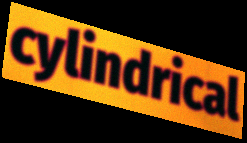
cylindrical